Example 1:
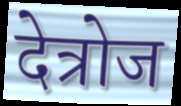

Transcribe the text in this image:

देत्रोज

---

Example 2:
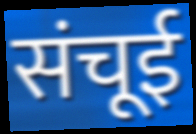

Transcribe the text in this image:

संचूई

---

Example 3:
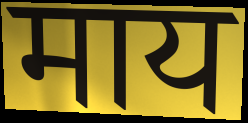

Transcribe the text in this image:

माय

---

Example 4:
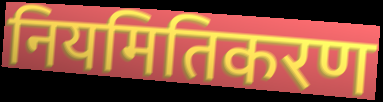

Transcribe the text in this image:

नियमितिकरण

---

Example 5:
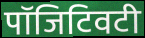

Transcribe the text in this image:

पॉजिटिवटी